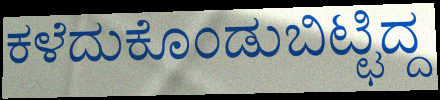
ಕಳೆದುಕೊಂಡುಬಿಟ್ಟಿದ್ದ